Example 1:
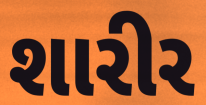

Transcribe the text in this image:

શારીર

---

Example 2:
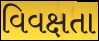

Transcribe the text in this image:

વિવક્ષતા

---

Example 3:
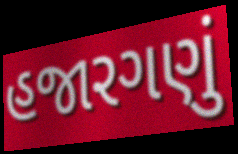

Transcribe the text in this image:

હજારગણું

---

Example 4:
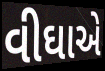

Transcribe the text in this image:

વીઘાએ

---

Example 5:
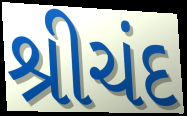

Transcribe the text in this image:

શ્રીચંદ